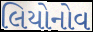
લિયોનોવ